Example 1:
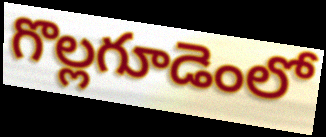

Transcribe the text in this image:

గొల్లగూడెంలో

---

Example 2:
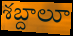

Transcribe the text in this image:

శబ్దాలూ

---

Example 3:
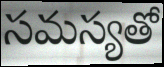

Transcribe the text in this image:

సమస్యతో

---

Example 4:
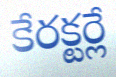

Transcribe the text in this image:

కేరక్టర్లే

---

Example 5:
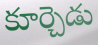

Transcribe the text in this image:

కూర్చెడు